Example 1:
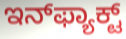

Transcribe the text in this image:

ಇನ್‌ಫ್ಯಾಕ್ಟ್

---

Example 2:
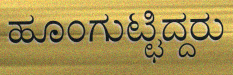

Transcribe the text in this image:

ಹೂಂಗುಟ್ಟಿದ್ದರು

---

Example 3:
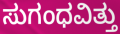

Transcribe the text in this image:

ಸುಗಂಧವಿತ್ತು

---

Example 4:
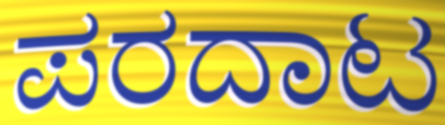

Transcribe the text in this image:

ಪರದಾಟ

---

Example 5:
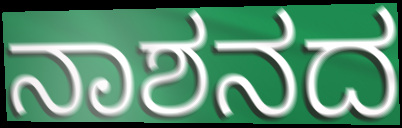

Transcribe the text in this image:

ನಾಶನದ